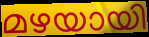
മഴയായി